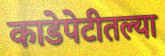
काडेपेटीतल्या